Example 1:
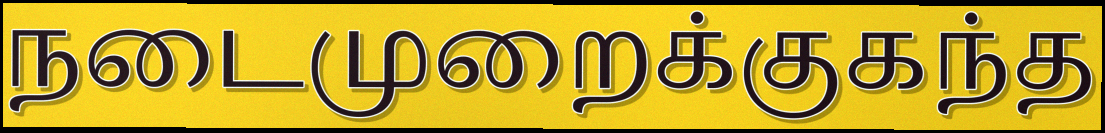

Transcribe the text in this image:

நடைமுறைக்குகந்த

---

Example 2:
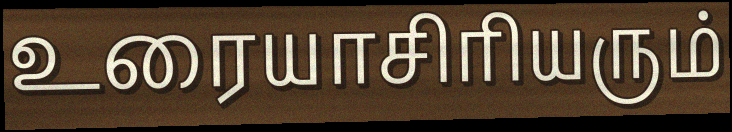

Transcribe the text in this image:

உரையாசிரியரும்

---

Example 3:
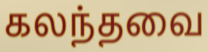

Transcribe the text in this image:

கலந்தவை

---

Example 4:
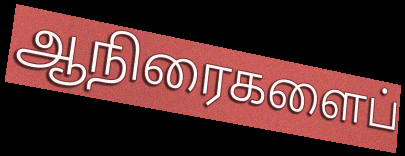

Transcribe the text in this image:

ஆநிரைகளைப்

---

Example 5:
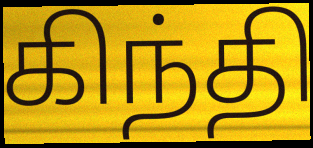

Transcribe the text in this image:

கிந்தி